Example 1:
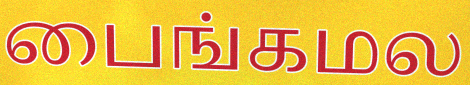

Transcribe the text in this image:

பைங்கமல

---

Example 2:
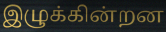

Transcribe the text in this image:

இழுக்கின்றன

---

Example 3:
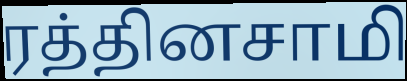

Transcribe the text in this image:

ரத்தினசாமி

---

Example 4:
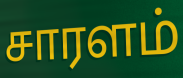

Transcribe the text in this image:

சாரளம்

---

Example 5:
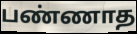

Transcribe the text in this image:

பண்ணாத